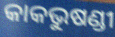
କାକଭୁଷଣ୍ଡୀ